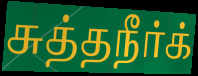
சுத்தநீர்க்